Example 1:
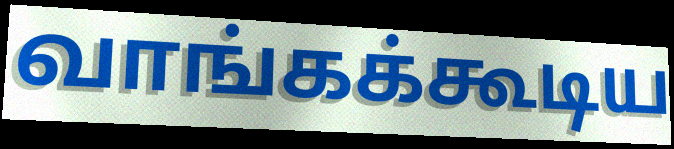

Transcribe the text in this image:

வாங்கக்கூடிய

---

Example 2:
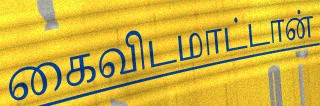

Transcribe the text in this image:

கைவிடமாட்டான்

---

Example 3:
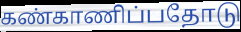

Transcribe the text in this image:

கண்காணிப்பதோடு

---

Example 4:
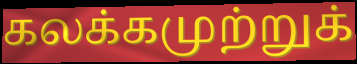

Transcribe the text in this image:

கலக்கமுற்றுக்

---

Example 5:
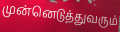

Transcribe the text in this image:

முன்னெடுத்துவரும்